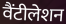
वैंटीलेशन